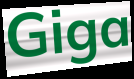
Giga